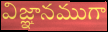
విజ్ఞానముగా